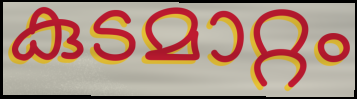
കുടമാറ്റം